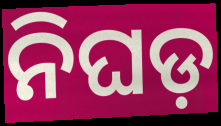
ନିଘଡ଼